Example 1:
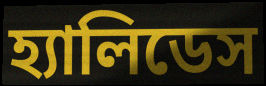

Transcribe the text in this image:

হ্যালিডেস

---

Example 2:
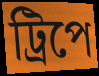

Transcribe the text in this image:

ট্রিপে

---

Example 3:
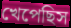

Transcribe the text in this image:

খেপেছিস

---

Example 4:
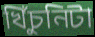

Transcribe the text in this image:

খিঁচুনিটা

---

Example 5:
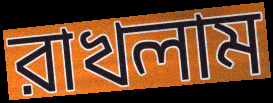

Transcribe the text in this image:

রাখলাম